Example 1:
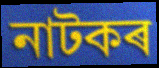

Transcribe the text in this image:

নাটকৰ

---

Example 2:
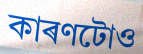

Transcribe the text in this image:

কাৰণটোও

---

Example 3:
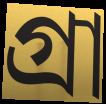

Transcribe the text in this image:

গ্ৰা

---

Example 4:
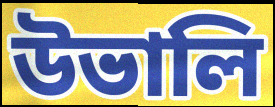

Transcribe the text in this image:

উভালি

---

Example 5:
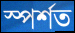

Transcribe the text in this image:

স্পৰ্শত